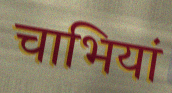
चाभियां